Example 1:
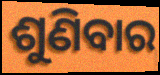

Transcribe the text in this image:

ଶୁଣିବାର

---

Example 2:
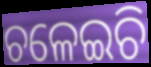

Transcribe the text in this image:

ଚଳେଇଚି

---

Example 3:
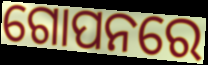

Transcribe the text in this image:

ଗୋପନରେ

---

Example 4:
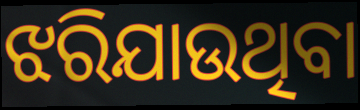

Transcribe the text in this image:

ଝରିଯାଉଥିବା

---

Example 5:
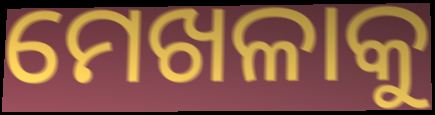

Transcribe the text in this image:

ମେଖଳାକୁ